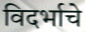
विदर्भाचे